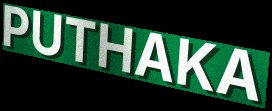
PUTHAKA